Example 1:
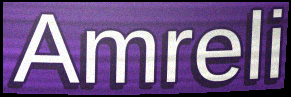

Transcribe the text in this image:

Amreli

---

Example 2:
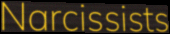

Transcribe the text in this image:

Narcissists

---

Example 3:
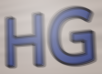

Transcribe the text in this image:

HG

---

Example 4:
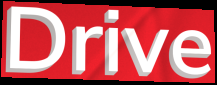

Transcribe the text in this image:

Drive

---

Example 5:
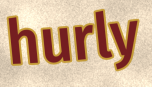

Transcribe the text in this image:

hurly